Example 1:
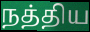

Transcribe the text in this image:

நத்திய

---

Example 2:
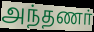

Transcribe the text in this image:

அந்தணர்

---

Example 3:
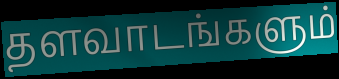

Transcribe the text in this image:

தளவாடங்களும்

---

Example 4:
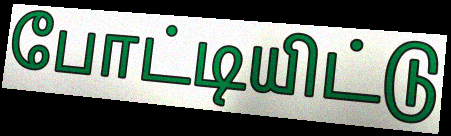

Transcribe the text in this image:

போட்டியிட்டு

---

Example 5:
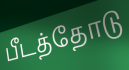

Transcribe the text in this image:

பீடத்தோடு